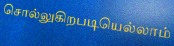
சொல்லுகிறபடியெல்லாம்